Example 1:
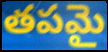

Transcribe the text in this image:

తపమై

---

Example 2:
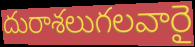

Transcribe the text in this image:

దురాశలుగలవారై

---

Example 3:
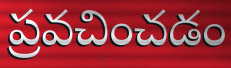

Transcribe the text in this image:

ప్రవచించడం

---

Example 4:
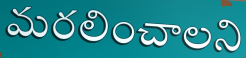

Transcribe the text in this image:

మరలించాలని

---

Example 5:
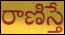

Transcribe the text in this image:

రాణిస్తే